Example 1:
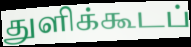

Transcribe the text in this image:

துளிக்கூடப்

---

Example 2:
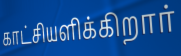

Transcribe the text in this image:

காட்சியளிக்கிறார்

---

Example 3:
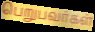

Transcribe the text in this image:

பெறுபவர்கள்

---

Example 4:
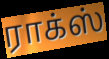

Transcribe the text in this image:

ராக்ஸ்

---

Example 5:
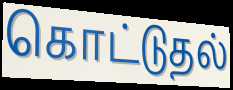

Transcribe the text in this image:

கொட்டுதல்